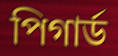
পিগার্ড